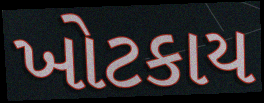
ખોટકાય